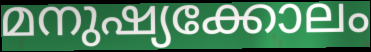
മനുഷ്യക്കോലം